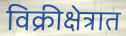
विक्रीक्षेत्रात